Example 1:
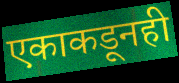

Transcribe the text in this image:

एकाकडूनही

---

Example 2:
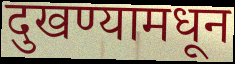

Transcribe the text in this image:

दुखण्यामधून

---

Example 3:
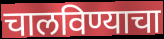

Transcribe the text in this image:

चालविण्याचा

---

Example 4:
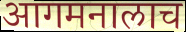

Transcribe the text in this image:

आगमनालाच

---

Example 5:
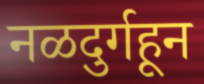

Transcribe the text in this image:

नळदुर्गहून